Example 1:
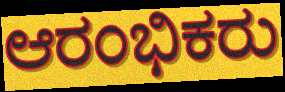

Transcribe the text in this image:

ಆರಂಭಿಕರು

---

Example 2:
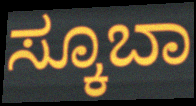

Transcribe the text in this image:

ಸ್ಕೂಬಾ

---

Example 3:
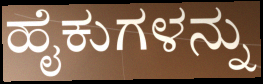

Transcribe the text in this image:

ಹೈಕುಗಳನ್ನು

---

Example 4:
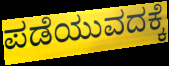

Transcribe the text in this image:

ಪಡೆಯುವದಕ್ಕೆ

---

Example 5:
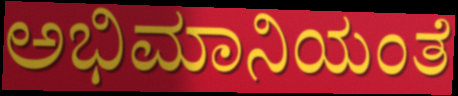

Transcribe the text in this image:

ಅಭಿಮಾನಿಯಂತೆ